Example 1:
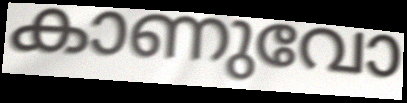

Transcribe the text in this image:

കാണുവോ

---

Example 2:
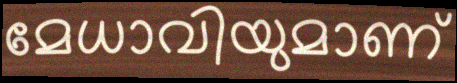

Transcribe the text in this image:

മേധാവിയുമാണ്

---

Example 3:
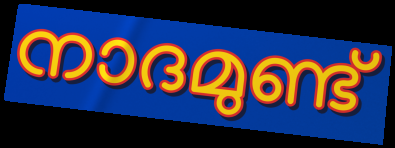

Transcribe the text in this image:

നാദമുണ്ട്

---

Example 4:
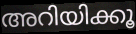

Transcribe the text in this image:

അറിയിക്കൂ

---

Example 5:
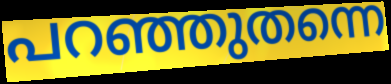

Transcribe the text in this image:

പറഞ്ഞുതന്നെ